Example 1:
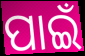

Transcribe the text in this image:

ପାଇଁ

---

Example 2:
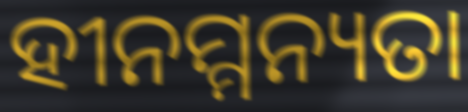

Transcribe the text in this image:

ହୀନମ୍ମନ୍ୟତା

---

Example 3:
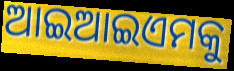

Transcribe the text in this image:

ଆଇଆଇଏମକୁ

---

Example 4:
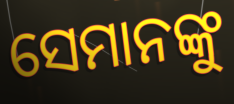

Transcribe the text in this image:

ସେମାନଙ୍କୁ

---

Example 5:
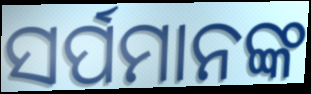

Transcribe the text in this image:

ସର୍ପମାନଙ୍କ